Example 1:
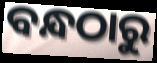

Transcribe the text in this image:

ବନ୍ଧଠାରୁ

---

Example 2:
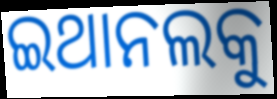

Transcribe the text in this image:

ଇଥାନଲକୁ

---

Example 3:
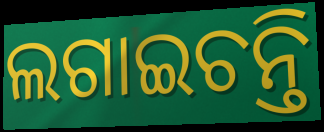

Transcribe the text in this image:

ଲଗାଇଚନ୍ତି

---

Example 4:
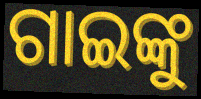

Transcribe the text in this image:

ଗାଇଙ୍କୁ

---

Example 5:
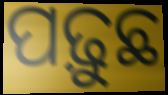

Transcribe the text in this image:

ପଢ଼ୁଛ